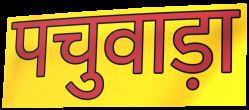
पचुवाड़ा